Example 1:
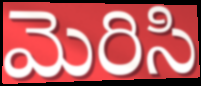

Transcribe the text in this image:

మెరిసి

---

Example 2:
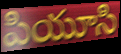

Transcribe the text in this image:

పియూసి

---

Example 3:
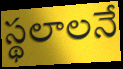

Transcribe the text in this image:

స్థలాలనే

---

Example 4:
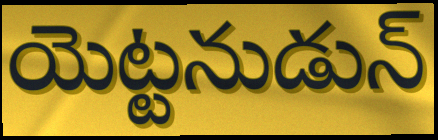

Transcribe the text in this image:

యెట్టనుడున్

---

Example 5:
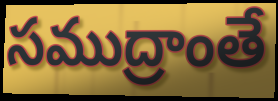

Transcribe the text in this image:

సముద్రాంతే